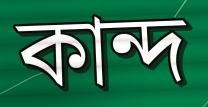
কান্দ